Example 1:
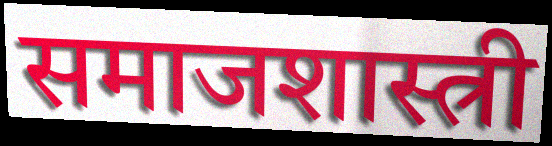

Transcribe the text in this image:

समाजशास्त्री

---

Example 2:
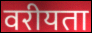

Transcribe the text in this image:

वरीयता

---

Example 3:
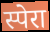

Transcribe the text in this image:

स्पेरा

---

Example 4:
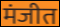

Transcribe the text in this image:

मंजीत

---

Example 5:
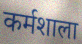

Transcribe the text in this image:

कर्मशाला